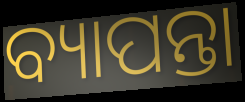
ବ୍ୟାପନ୍ତା